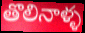
తొలినాళ్ళ